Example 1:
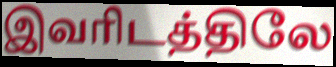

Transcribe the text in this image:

இவரிடத்திலே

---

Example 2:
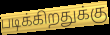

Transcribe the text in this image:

படிக்கிறதுக்கு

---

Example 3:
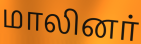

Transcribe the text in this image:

மாலினர்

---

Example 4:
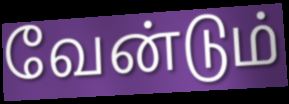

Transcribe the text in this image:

வேன்டும்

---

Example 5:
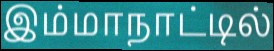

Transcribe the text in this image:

இம்மாநாட்டில்